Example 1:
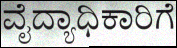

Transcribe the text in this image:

ವೈದ್ಯಾಧಿಕಾರಿಗೆ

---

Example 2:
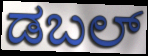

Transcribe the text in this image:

ಡಬಲ್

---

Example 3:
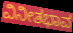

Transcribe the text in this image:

ವಿನೀತಭಾವ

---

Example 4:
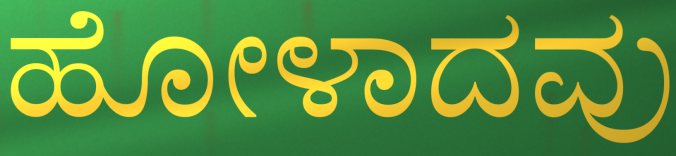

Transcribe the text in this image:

ಹೋಳಾದವು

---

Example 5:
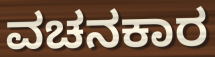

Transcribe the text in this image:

ವಚನಕಾರ